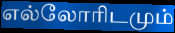
எல்லோரிடமும்